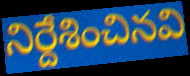
నిర్దేశించినవి